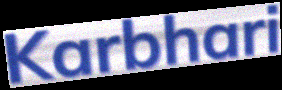
Karbhari